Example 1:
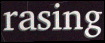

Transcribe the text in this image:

rasing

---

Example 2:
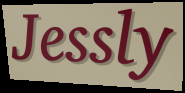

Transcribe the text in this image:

Jessly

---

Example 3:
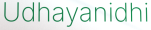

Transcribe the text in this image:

Udhayanidhi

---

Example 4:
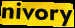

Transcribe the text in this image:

nivory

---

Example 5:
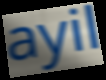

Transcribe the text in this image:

ayil